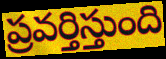
ప్రవర్తిస్తుంది